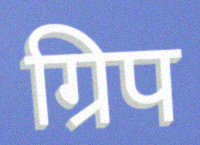
ग्रिप